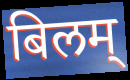
बिलम्